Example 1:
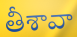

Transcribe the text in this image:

తీశావా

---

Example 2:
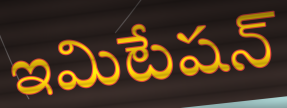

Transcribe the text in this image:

ఇమిటేషన్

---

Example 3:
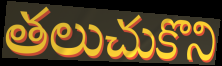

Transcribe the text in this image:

తలుచుకొని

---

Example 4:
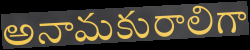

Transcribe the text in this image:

అనామకురాలిగా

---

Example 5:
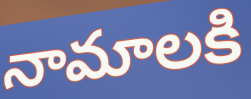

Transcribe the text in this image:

నామాలకి